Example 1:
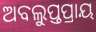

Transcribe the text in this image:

ଅବଲୁପ୍ତପ୍ରାୟ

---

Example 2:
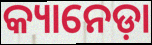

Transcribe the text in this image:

କ୍ୟାନେଡ଼ା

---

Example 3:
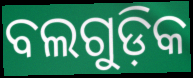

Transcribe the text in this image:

ବଲଗୁଡ଼ିକ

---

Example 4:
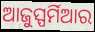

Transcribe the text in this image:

ଆଜୁସ୍ପର୍ମିଆର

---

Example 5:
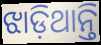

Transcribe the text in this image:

ଝାଡ଼ିଥାନ୍ତି